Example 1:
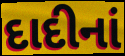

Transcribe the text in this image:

દાદીનાં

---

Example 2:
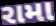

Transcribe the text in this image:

રામા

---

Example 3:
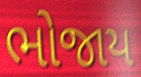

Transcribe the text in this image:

ભોજાય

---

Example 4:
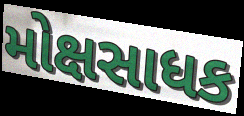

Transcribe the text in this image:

મોક્ષસાધક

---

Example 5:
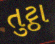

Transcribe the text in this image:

તુટ્ઠા